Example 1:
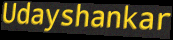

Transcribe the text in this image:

Udayshankar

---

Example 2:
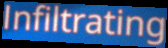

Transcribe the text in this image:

Infiltrating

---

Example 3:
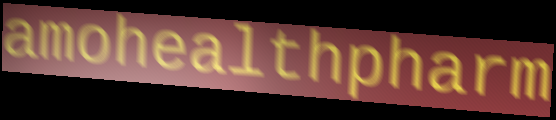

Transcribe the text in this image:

amohealthpharm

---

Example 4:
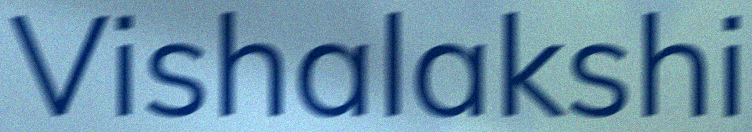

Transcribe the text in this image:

Vishalakshi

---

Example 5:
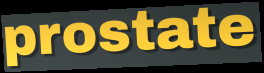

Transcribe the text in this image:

prostate